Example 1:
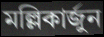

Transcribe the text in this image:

মল্লিকার্জুন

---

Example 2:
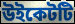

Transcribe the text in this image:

উইকেটটি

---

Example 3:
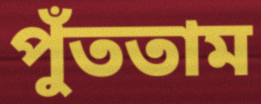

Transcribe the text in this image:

পুঁততাম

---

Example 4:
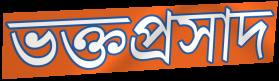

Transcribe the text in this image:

ভক্তপ্রসাদ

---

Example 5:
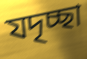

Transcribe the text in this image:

যদৃচ্ছা